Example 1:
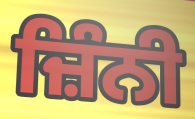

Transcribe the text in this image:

ਜ਼ਿੰਨੀ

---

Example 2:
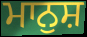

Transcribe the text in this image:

ਮਾਨੁਸ਼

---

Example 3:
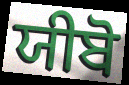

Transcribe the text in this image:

ਯੀਬੋ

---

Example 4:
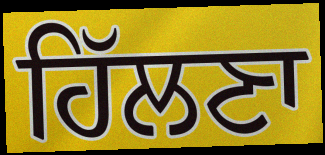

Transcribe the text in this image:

ਹਿੱਲਣਾ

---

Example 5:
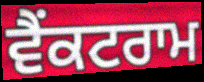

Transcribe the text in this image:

ਵੈਂਕਟਰਾਮ